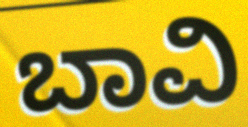
ಬಾವಿ